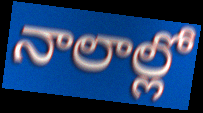
నాలాల్లో